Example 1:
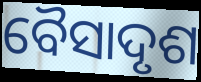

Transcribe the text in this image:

ବୈସାଦୃଶ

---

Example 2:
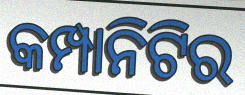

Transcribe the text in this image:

କମ୍ପାନିଟିର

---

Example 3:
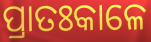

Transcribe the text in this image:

ପ୍ରାତଃକାଳେ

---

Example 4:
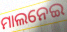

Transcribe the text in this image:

ମାଲନେଇ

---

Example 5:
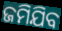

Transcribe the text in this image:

ଜମିଯିବ